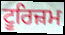
ਟੂਰਿਜ਼ਮ